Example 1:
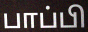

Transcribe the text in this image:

பாப்பி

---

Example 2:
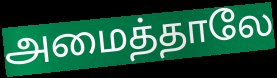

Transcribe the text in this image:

அமைத்தாலே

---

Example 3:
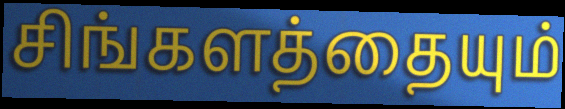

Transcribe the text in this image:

சிங்களத்தையும்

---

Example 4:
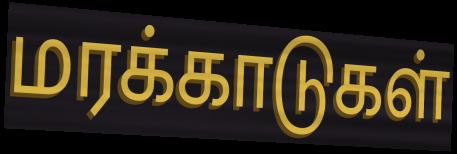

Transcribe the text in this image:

மரக்காடுகள்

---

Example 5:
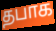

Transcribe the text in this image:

தபாக